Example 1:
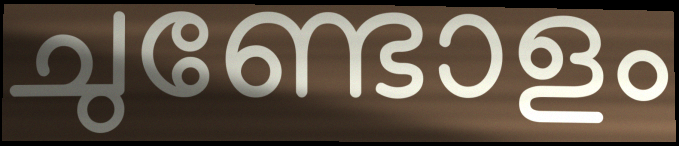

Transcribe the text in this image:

ചുണ്ടോളം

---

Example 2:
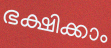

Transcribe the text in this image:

ഭക്ഷിക്കാം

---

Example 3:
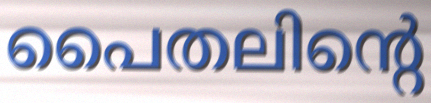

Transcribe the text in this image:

പൈതലിന്റെ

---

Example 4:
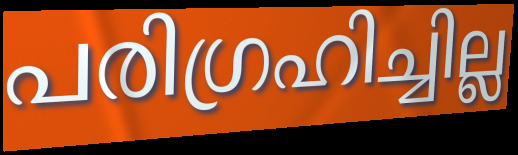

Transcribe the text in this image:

പരിഗ്രഹിച്ചില്ല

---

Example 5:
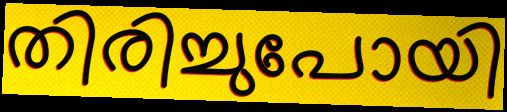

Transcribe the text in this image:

തിരിച്ചുപോയി